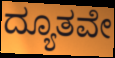
ದ್ಯೂತವೇ